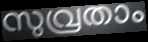
സുവ്രതാം